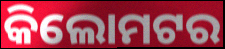
କିଲୋମଟର